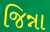
જિન્ના